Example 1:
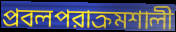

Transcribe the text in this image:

প্রবলপরাক্রমশালী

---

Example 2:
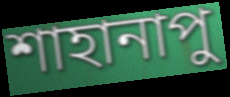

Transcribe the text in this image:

শাহানাপু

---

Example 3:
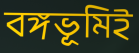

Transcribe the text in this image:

বঙ্গভূমিই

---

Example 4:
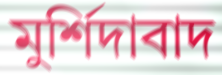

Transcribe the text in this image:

মুর্শিদাবাদ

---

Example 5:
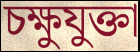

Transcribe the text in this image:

চক্ষুযুক্তা